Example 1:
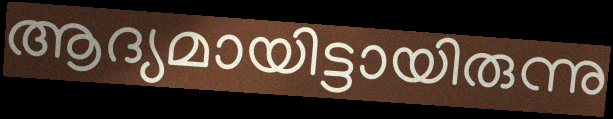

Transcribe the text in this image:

ആദ്യമായിട്ടായിരുന്നു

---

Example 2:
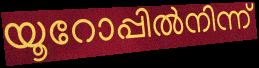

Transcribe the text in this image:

യൂറോപ്പിൽനിന്ന്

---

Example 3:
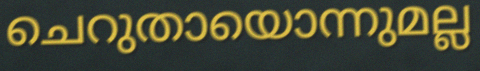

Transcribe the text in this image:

ചെറുതായൊന്നുമല്ല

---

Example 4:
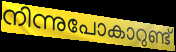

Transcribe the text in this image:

നിന്നുപോകാറുണ്ട്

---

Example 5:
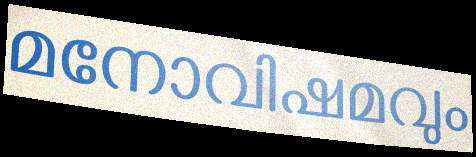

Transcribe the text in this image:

മനോവിഷമവും